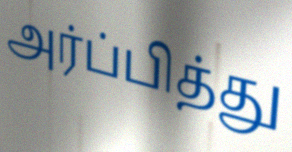
அர்ப்பித்து